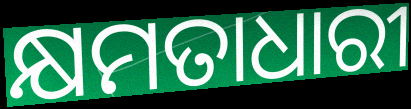
କ୍ଷମତାଧାରୀ